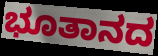
ಭೂತಾನದ